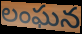
లంఘన